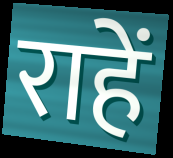
राहें